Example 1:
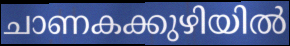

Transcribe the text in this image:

ചാണകക്കുഴിയിൽ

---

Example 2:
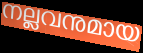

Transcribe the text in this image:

നല്ലവനുമായ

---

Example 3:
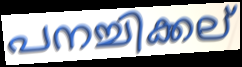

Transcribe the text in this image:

പനച്ചിക്കല്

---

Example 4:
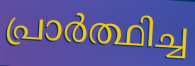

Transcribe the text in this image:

പ്രാർത്ഥിച്ച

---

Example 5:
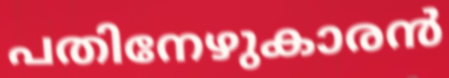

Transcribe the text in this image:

പതിനേഴുകാരൻ